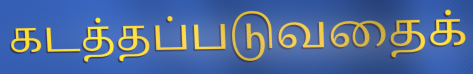
கடத்தப்படுவதைக்